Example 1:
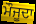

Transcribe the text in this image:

ਮੌਜੂਦਾ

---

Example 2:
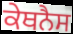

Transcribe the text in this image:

ਕੇਥਨੈਸ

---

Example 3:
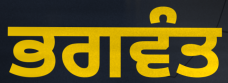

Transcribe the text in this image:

ਭਗਵੰਤ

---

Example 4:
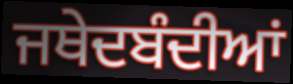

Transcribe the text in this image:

ਜਥੇਦਬੰਦੀਆਂ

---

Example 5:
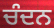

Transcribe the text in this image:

ਚੰਦਨ